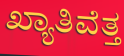
ಖ್ಯಾತಿವೆತ್ತ